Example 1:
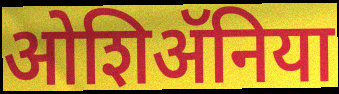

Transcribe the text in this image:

ओशिॲनिया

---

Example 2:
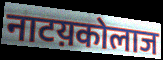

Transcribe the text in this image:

नाटय़कोलाज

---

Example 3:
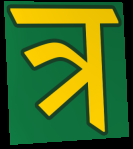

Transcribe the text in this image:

त्र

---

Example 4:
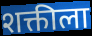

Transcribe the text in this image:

शक्तीला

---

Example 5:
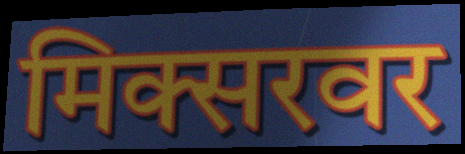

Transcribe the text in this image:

मिक्‍सरवर